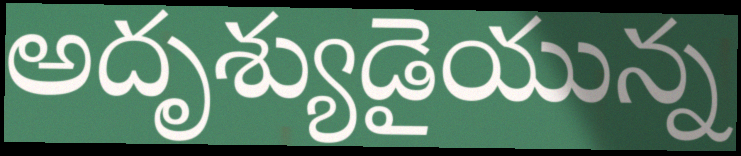
అదృశ్యుడైయున్న